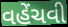
વહેંચવી